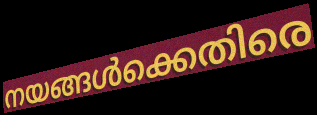
നയങ്ങൾക്കെതിരെ